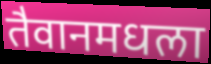
तैवानमधला